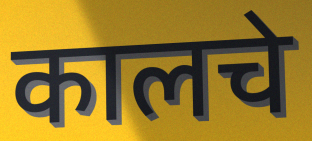
कालचे